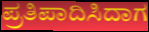
ಪ್ರತಿಪಾದಿಸಿದಾಗ